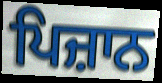
ਪਿਜ਼ਾਨ